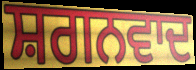
ਸ਼ਗਨਵਾਦ